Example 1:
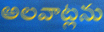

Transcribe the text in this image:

అలవాట్లను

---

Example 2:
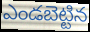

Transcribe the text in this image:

ఎండబెట్టిన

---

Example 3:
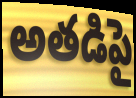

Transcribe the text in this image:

అతడిపై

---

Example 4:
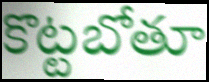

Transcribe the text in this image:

కొట్టబోతూ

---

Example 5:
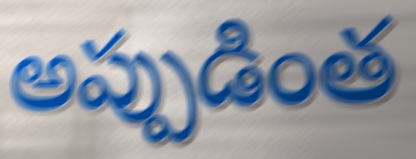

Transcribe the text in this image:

అప్పుడింత